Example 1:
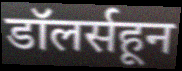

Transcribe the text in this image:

डॉलर्सहून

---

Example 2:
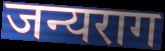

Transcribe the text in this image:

जन्यराग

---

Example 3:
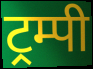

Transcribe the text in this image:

ट्रम्पी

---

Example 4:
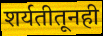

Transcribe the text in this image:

शर्यतीतूनही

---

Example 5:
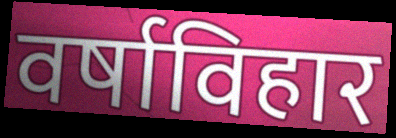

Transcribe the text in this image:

वर्षाविहार